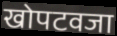
खोपटवजा